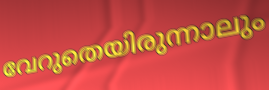
വേറുതെയിരുന്നാലും